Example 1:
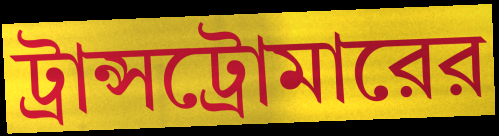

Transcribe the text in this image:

ট্রান্সট্রোমারের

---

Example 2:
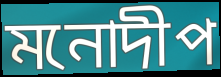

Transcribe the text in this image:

মনোদীপ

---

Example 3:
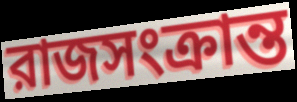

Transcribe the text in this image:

রাজসংক্রান্ত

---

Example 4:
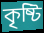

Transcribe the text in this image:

কৃষ্টি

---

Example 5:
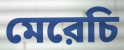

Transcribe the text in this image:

মেরেচি